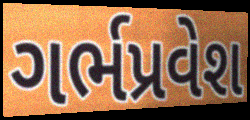
ગર્ભપ્રવેશ